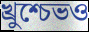
খ্রুশ্চেভও